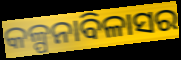
କଳ୍ପନାବିଳାସର